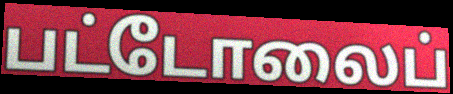
பட்டோலைப்